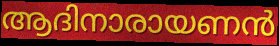
ആദിനാരായണൻ